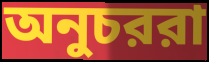
অনুচররা